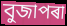
বুজাপৰা